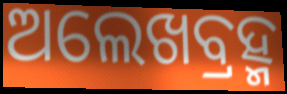
ଅଲେଖବ୍ରହ୍ମ